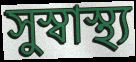
সুস্বাস্থ্য